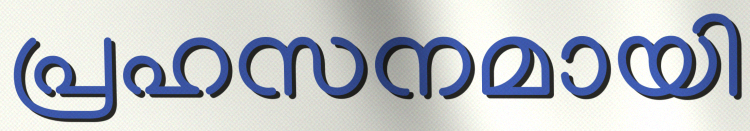
പ്രഹസനമായി